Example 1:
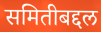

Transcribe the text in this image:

समितीबद्दल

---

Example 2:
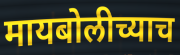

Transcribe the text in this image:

मायबोलीच्याच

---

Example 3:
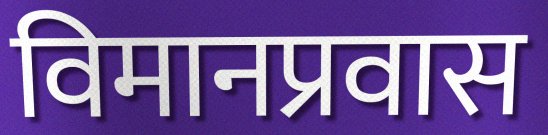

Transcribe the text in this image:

विमानप्रवास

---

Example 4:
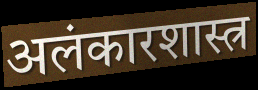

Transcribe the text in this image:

अलंकारशास्त्र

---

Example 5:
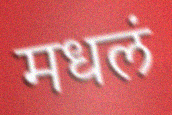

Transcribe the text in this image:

मधलं